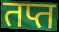
तप्त